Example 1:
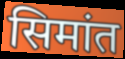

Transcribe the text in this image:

सिमांत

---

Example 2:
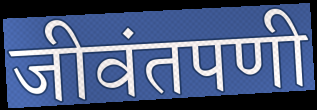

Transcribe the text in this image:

जीवंतपणी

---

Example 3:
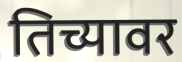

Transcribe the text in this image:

तिच्यावर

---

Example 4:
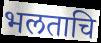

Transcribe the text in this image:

भलताचि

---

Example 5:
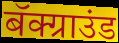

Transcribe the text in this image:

बॅक्ग्राउंड